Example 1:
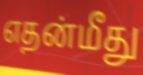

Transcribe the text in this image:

எதன்மீது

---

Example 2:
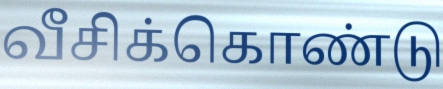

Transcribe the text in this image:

வீசிக்கொண்டு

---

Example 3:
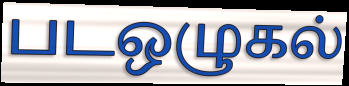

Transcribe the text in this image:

படஒழுகல்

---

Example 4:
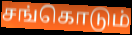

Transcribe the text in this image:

சங்கொடும்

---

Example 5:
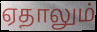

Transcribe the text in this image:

ஏதாலும்